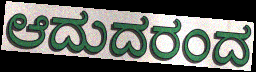
ಆದುದರಂದ